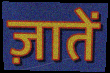
ज़ातें